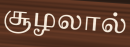
சூழலால்